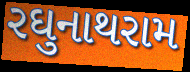
રઘુનાથરામ